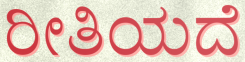
ರೀತಿಯದೆ